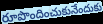
రూపొందించుకునేందుకు